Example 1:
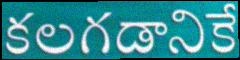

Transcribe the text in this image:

కలగడానికే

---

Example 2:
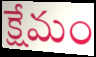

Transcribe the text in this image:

క్షేమం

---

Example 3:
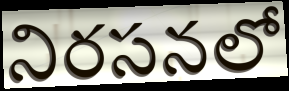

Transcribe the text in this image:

నిరసనలో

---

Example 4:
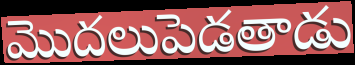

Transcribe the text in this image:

మొదలుపెడతాడు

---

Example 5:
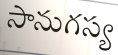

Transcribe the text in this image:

సానుగస్య